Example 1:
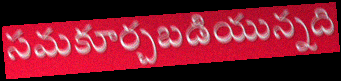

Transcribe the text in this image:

సమకూర్చబడియున్నది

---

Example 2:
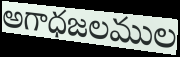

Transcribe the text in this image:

అగాధజలముల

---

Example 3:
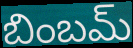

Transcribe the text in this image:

బింబమ్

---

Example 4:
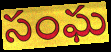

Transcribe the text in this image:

సంఘ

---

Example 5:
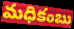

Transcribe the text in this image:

మధికంబు